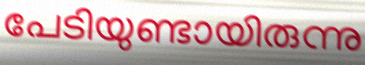
പേടിയുണ്ടായിരുന്നു